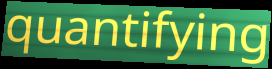
quantifying